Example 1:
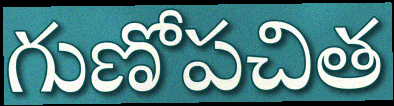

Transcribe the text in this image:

గుణోపచిత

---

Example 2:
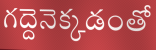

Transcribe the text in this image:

గద్దెనెక్కడంతో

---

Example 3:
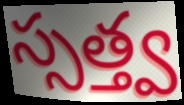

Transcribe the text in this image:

స్సత్త్వ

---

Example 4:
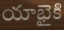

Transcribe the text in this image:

యాభైకి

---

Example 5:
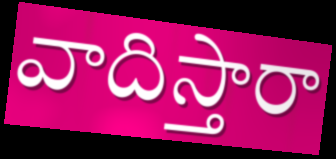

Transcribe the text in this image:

వాదిస్తారా